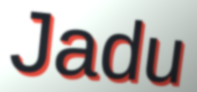
Jadu